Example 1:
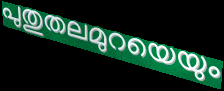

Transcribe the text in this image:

പുതുതലമുറയെയും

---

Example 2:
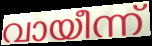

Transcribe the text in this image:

വായീന്ന്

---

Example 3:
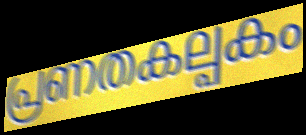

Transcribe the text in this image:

പ്രണതകല്പകം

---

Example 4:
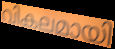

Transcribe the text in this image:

വികലമായി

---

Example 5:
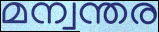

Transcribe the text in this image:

മന്വന്തര